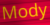
Mody